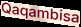
Qaqambisa